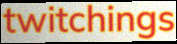
twitchings